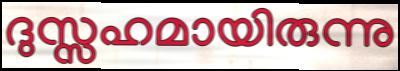
ദുസ്സഹമായിരുന്നു